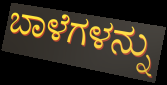
ಬಾಳೆಗಳನ್ನು